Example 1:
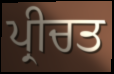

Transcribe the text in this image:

ਪ੍ਰੀਚਤ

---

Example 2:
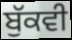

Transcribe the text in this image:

ਬੁੱਕਵੀ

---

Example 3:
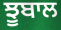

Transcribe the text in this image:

ਝੂਬਾਲ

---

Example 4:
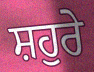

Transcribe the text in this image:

ਸ਼ਹੁਰੇ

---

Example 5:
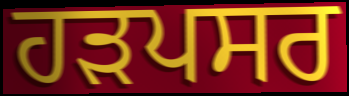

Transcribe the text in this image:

ਹੜਪਸਰ